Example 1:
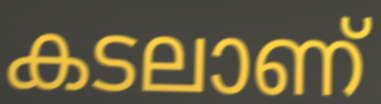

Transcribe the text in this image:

കടലാണ്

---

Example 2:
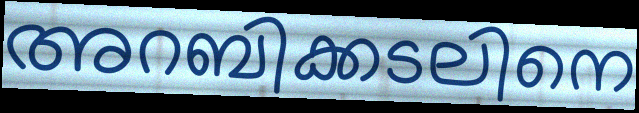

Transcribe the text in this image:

അറബിക്കടലിനെ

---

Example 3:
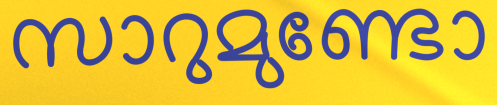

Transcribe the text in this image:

സാറുമുണ്ടോ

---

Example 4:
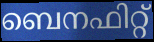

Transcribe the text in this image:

ബെനഫിറ്റ്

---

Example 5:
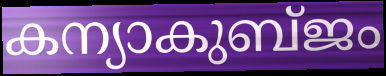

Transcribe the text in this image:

കന്യാകുബ്ജം